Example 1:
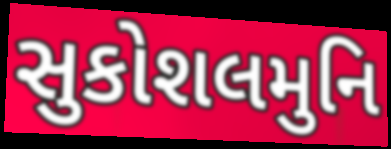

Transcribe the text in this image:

સુકોશલમુનિ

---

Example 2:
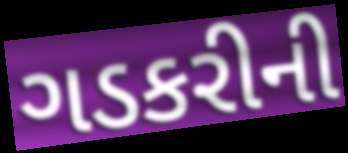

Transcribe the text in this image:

ગડકરીની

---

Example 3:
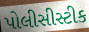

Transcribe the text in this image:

પોલીસીસ્ટીક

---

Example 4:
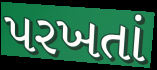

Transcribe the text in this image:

પરખતાં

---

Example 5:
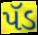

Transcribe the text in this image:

પૅડ